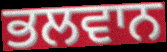
ਭਲਵਾਨ